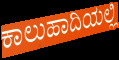
ಕಾಲುಹಾದಿಯಲ್ಲಿ